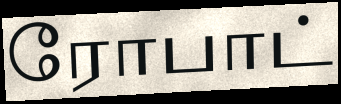
ரோபாட்